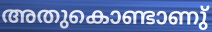
അതുകൊണ്ടാണു്